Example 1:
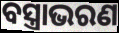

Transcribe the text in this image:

ବସ୍ତ୍ରାଭରଣ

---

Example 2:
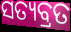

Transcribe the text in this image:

ସତ୍ୟବ୍ରତ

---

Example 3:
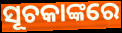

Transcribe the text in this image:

ସୂଚକାଙ୍କରେ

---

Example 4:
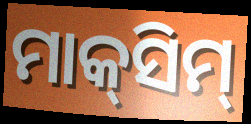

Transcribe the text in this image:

ମାକ୍‍ସିମ୍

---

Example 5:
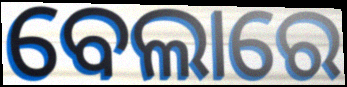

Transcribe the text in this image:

ବେଲାରେ